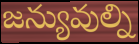
జన్యువుల్ని